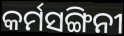
କର୍ମସଙ୍ଗିନୀ